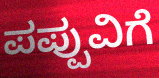
ಪಪ್ಪುವಿಗೆ